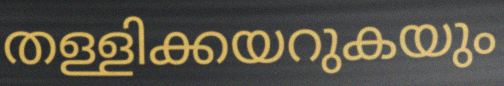
തള്ളിക്കയറുകയും